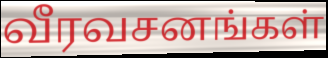
வீரவசனங்கள்